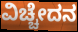
ವಿಚ್ಚೇದನ